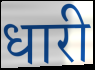
धारी